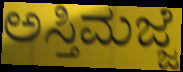
ಅಸ್ತಿಮಜ್ಜೆ